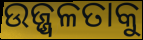
ଉଜ୍ଜ୍ୱଳତାକୁ